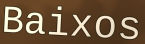
Baixos